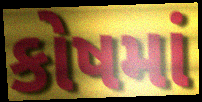
કોષમાં